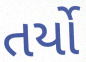
તર્યો